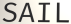
SAIL